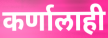
कर्णालाही